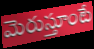
మెరుస్తూంటే